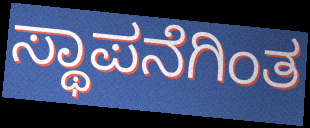
ಸ್ಥಾಪನೆಗಿಂತ